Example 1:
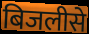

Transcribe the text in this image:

बिजलीसे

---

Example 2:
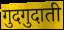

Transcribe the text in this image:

गुदगुदाती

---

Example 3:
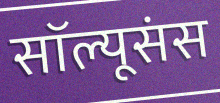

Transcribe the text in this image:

सॉल्यूसंस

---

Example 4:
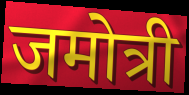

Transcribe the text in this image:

जमोत्री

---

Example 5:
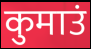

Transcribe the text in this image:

कुमाउं